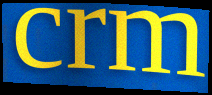
crm